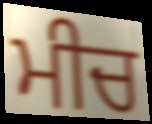
ਮੀਚ